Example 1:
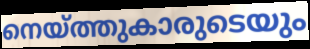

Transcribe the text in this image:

നെയ്ത്തുകാരുടെയും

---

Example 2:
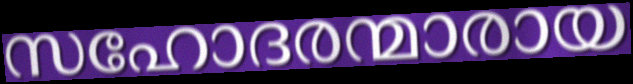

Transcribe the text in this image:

സഹോദരന്മാരായ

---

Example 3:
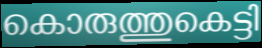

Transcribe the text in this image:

കൊരുത്തുകെട്ടി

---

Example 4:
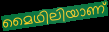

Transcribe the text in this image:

മൈഥിലിയാണ്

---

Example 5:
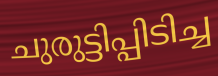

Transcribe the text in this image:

ചുരുട്ടിപ്പിടിച്ച